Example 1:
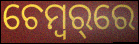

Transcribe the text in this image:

ଚେମ୍ବର୍‌ରେ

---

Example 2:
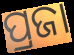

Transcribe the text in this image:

ପ୍ରଜା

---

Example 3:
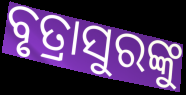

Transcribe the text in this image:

ବୃତ୍ରାସୁରଙ୍କୁ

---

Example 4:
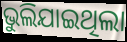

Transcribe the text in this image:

ଭୁଲିଯାଇଥିଲା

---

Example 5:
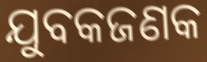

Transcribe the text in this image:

ଯୁବକଜଣକ